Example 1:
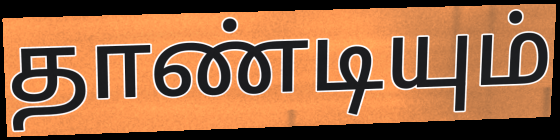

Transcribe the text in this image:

தாண்டியும்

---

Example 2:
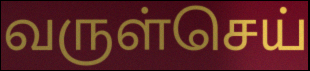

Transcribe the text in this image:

வருள்செய்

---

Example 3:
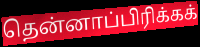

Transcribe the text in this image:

தென்னாப்பிரிக்கக்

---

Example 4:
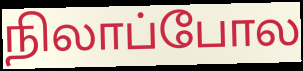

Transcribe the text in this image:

நிலாப்போல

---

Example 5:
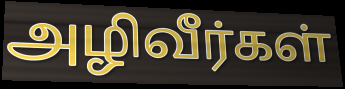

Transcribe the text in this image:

அழிவீர்கள்